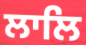
ਲਾਲਿ